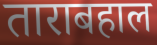
ताराबहाल